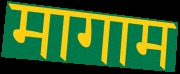
मागाम